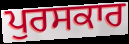
ਪੁਰਸਕਾਰ